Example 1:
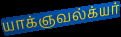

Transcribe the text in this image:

யாக்ஞவல்க்யர்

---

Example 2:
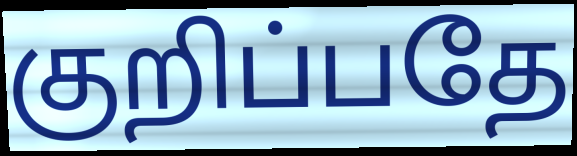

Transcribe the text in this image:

குறிப்பதே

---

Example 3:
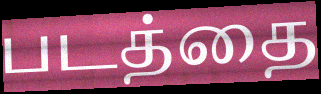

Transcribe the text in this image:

படத்தை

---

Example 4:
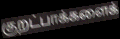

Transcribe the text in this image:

குறட்பாக்களைக்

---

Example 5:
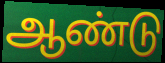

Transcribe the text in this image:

ஆண்டு